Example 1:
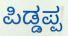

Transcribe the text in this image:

ಪಿಡ್ಡಪ್ಪ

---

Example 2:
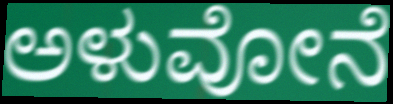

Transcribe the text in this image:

ಅಳುವೋನೆ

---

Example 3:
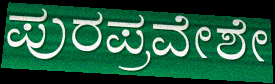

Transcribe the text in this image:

ಪುರಪ್ರವೇಶೇ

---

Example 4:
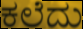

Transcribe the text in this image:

ಕಲೆದು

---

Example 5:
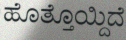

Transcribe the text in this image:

ಹೊತ್ತೊಯ್ದಿದೆ